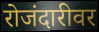
रोजंदारीवर